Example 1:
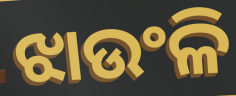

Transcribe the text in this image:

ଝାଉଂଳି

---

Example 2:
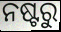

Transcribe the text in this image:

ନଷ୍ଟରୁ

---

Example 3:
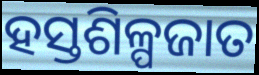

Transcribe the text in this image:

ହସ୍ତଶିଳ୍ପଜାତ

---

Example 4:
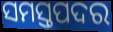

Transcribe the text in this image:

ସମସ୍ତପଦର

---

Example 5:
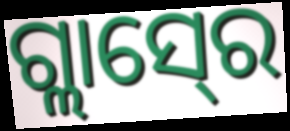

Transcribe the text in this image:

ଗ୍ଲାସ୍‍ରେ